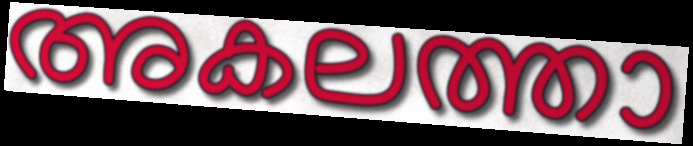
അകലത്താ